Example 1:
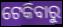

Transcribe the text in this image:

ଟେକିବାରୁ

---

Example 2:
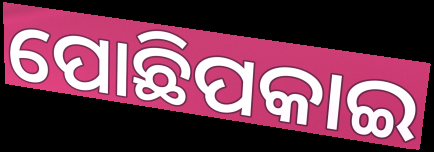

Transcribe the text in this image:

ପୋଛିପକାଇ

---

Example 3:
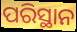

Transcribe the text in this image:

ପରିସ୍ଥାନ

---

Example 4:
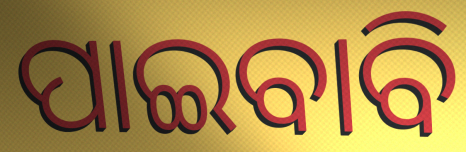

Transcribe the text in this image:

ପାଇବାବି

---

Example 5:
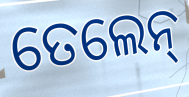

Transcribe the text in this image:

ତେଲେନ୍